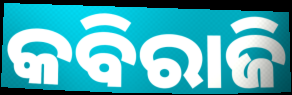
କବିରାଜି